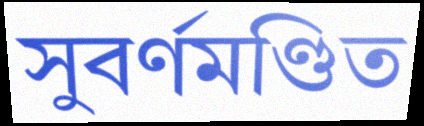
সুবর্ণমণ্ডিত